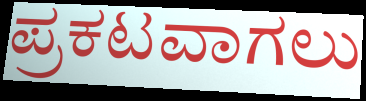
ಪ್ರಕಟವಾಗಲು